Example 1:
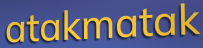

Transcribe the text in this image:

atakmatak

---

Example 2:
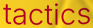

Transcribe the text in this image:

tactics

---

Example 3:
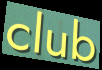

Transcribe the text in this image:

club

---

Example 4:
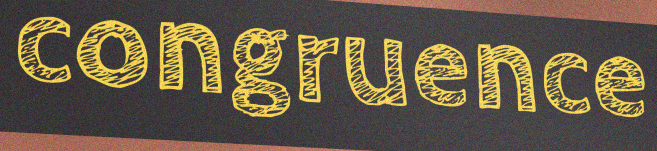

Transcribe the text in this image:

congruence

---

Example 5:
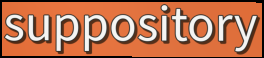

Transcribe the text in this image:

suppository